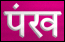
पंख